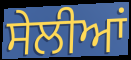
ਸੇਲੀਆਂ